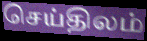
செய்திலம்